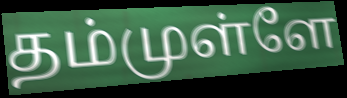
தம்முள்ளே